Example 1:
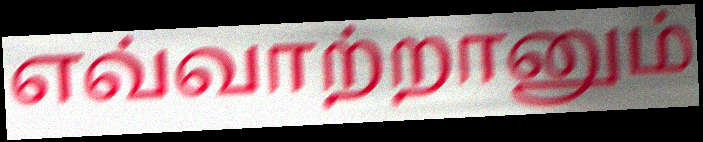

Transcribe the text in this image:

எவ்வாற்றானும்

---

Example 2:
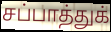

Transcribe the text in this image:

சப்பாத்துக்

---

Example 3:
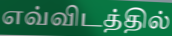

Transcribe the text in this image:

எவ்விடத்தில்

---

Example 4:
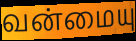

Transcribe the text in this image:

வன்மையு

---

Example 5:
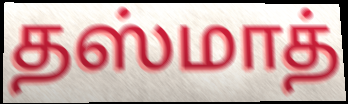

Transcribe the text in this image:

தஸ்மாத்